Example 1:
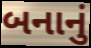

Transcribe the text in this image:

બનાનું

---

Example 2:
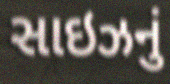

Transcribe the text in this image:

સાઇઝનું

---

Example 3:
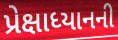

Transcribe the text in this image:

પ્રેક્ષાધ્યાનની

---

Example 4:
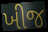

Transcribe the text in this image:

ખીજ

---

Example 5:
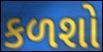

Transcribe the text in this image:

કળશો